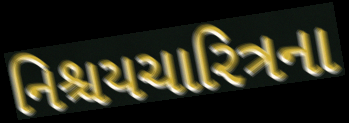
નિશ્ચયચારિત્રના